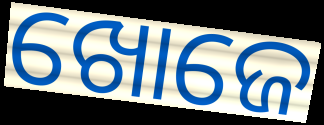
ଖୋଜେ